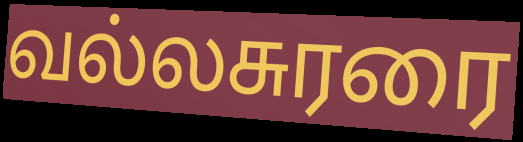
வல்லசுரரை